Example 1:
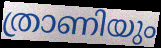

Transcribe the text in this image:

ത്രാണിയും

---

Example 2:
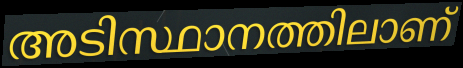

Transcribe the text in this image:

അടിസ്ഥാനത്തിലാണ്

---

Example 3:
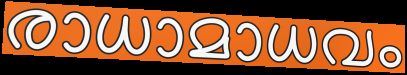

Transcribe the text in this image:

രാധാമാധവം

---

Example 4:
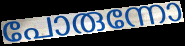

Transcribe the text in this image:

പോരുന്നോ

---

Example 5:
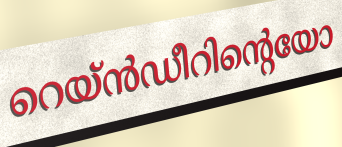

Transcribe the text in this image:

റെയ്ൻഡീറിന്റെയോ